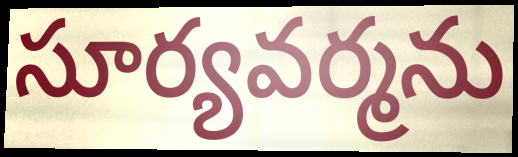
సూర్యవర్మను